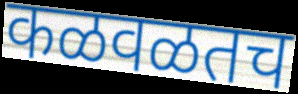
कळवळतच